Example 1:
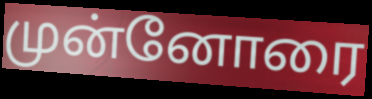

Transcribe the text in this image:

முன்னோரை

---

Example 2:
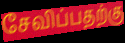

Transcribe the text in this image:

சேவிப்பதற்கு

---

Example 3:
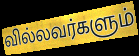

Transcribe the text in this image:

வில்லவர்களும்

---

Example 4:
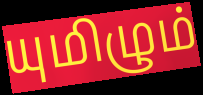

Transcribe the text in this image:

யுமிழும்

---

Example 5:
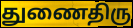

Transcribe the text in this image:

துணைதிரு